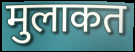
मुलाकत